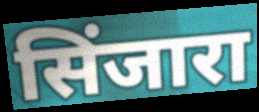
सिंजारा